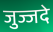
जुज्जदे